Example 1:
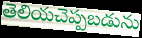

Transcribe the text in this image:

తెలియచెప్పబడును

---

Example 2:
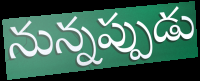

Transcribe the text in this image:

నున్నప్పుడు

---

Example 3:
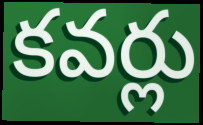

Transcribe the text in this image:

కవర్లు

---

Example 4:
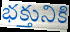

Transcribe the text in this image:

భక్తునికి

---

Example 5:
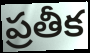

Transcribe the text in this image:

ప్రతీక